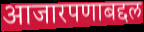
आजारपणाबद्दल